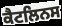
ਕੈਟਲਿਨਸ